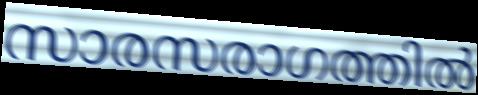
സാരസരാഗത്തിൽ